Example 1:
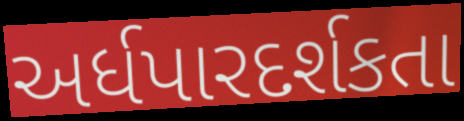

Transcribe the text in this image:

અર્ધપારદર્શકતા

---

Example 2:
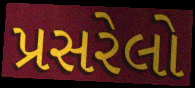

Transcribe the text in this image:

પ્રસરેલો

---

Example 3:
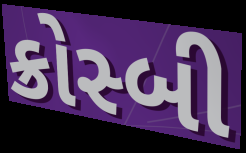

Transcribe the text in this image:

ક્રોસ્બી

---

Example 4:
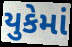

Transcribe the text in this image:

યુકેમાં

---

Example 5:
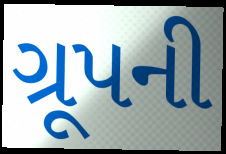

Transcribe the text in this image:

ગ્રૂપની